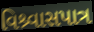
વિશ્ર્વાસપાત્ર